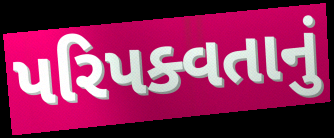
પરિપક્વતાનું